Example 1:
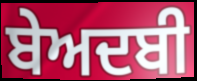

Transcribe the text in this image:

ਬੇਅਦਬੀ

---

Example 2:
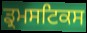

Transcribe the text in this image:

ਡ੍ਰਮਸਟਿਕਸ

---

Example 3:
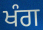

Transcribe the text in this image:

ਖੰਗ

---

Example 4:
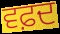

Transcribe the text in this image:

ਵਫ਼ਦ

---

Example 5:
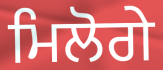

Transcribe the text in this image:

ਮਿਲੋਗੇ